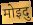
मोइदु